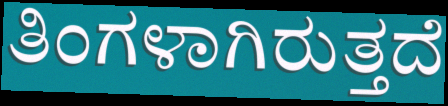
ತಿಂಗಳಾಗಿರುತ್ತದೆ